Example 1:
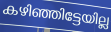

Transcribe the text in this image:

കഴിഞ്ഞിട്ടേയില്ല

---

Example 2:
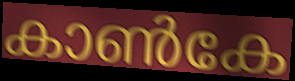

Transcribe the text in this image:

കാൺകേ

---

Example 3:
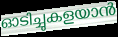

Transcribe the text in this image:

ഓടിച്ചുകളയാൻ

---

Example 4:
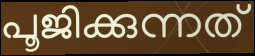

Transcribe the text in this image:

പൂജിക്കുന്നത്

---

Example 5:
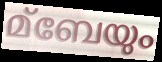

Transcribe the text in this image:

മ്ബേയും